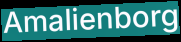
Amalienborg